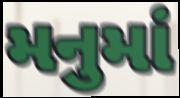
મનુમાં